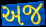
અજ